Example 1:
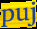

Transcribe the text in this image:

puj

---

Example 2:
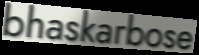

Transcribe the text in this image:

bhaskarbose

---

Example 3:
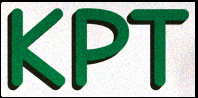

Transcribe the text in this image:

KPT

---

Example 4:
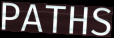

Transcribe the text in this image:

PATHS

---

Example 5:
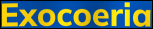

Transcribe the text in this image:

Exocoeria